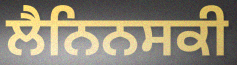
ਲੈਨਿਨਸਕੀ